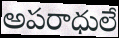
అపరాధులే